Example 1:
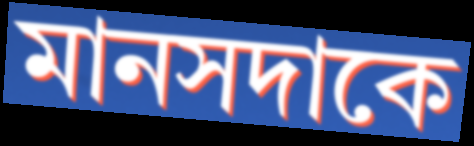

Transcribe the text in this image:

মানসদাকে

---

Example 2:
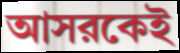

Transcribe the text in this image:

আসরকেই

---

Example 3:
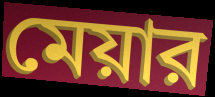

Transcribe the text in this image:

মেয়ার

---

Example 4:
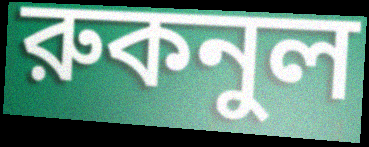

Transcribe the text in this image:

রুকনুল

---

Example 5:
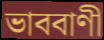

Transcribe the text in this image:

ভাববাণী